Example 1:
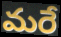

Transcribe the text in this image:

మరే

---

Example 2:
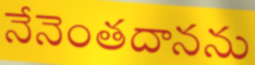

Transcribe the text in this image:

నేనెంతదానను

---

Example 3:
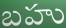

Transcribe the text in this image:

బహు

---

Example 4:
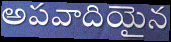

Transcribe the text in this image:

అపవాదియైన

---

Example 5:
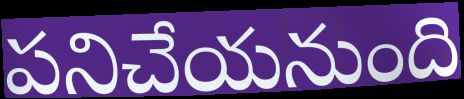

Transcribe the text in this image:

పనిచేయనుంది